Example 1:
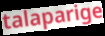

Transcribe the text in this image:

talaparige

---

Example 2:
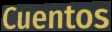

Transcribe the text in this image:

Cuentos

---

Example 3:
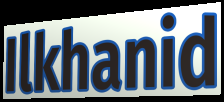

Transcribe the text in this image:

Ilkhanid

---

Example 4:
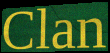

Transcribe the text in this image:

Clan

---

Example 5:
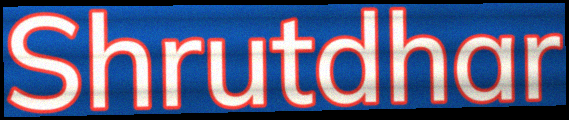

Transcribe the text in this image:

Shrutdhar